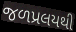
જળપ્રલયથી